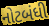
નોટબંધી